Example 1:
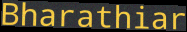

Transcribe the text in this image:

Bharathiar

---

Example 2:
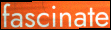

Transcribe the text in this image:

fascinate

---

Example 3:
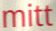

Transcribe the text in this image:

mitt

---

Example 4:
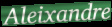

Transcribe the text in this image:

Aleixandre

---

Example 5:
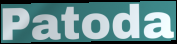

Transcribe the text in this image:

Patoda